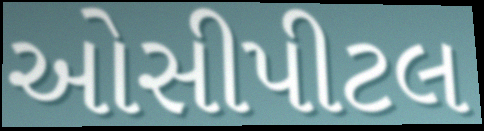
ઓસીપીટલ